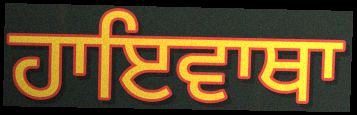
ਹਾਇਵਾਥਾ